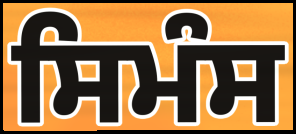
ਸਿਮੰਸ